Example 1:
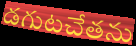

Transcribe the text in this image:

డగుటచేతను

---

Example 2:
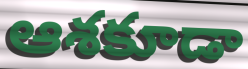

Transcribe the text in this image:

ఆశకూడా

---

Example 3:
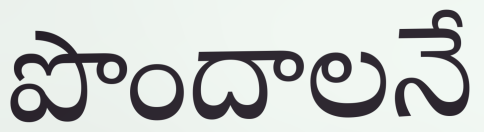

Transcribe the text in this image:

పొందాలనే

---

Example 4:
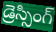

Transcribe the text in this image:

డ్రెస్సింగ్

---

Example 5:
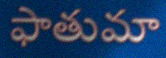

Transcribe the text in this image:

ఫాతుమా